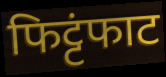
फिट्टंफाट